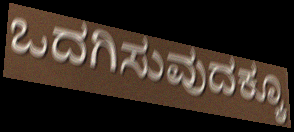
ಒದಗಿಸುವುದಕ್ಕೂ